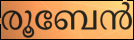
രൂബേൻ